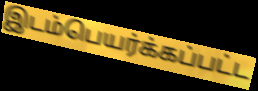
இடம்பெயர்க்கப்பட்ட